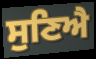
ਸੁਣਿਐ